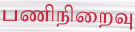
பணிநிறைவு